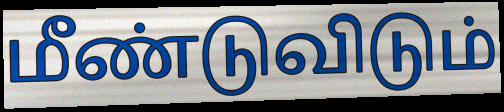
மீண்டுவிடும்